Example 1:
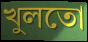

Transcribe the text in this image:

খুলতো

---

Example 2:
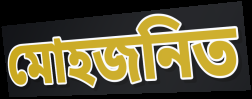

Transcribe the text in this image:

মোহজনিত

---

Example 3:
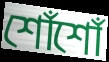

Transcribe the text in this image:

শোঁশোঁ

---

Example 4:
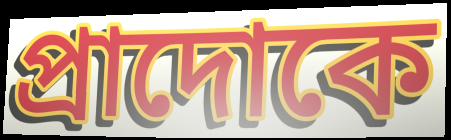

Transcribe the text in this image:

প্রাদোকে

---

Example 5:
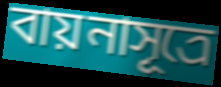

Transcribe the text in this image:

বায়নাসূত্রে